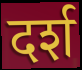
दर्श